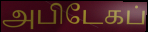
அபிடேகப்